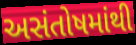
અસંતોષમાંથી